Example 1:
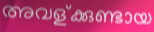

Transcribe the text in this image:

അവള്ക്കുണ്ടായ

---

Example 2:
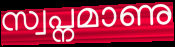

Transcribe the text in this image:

സ്വപ്നമാണു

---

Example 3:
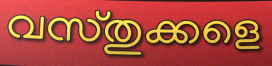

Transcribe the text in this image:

വസ്തുക്കളെ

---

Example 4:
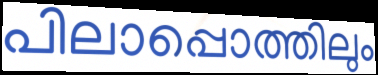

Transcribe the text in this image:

പിലാപ്പൊത്തിലും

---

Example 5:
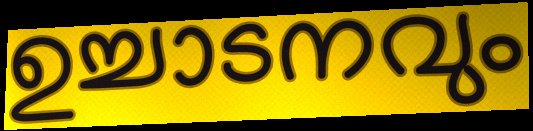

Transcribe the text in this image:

ഉച്ചാടനവും